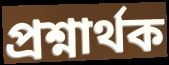
প্ৰশ্নাৰ্থক